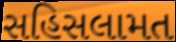
સહિસલામત